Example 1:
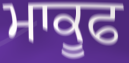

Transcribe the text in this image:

ਮਾਕੂਫ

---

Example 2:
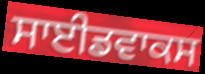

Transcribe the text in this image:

ਸਾਈਡਵਾਕਸ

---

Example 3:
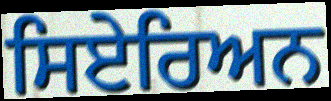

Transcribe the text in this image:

ਸਿਏਰਿਅਨ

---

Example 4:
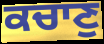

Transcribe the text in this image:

ਕਚਾਣੁ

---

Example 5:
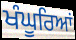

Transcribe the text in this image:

ਖੰਘੂਰਿਆਂ